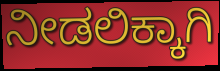
ನೀಡಲಿಕ್ಕಾಗಿ